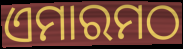
ଏମାରମଠ